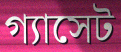
গ্যাসেট